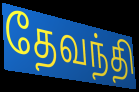
தேவந்தி